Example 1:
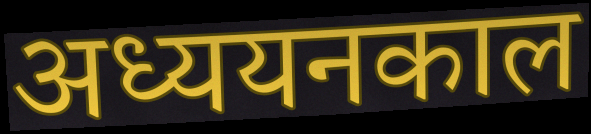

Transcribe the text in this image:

अध्ययनकाल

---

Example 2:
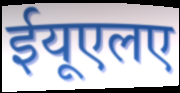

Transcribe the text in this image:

ईयूएलए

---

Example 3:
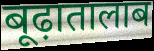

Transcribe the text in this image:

बूढ़ातालाब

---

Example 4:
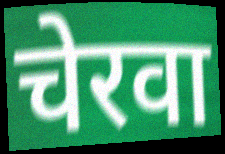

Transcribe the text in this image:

चेरवा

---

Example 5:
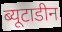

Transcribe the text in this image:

ब्यूटाडीन